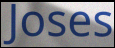
Joses